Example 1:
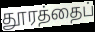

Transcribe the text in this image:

தூரத்தைப்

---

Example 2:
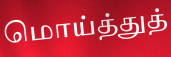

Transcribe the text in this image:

மொய்த்துத்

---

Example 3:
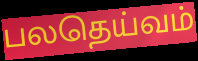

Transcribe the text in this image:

பலதெய்வம்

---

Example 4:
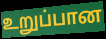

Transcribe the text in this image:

உறுப்பான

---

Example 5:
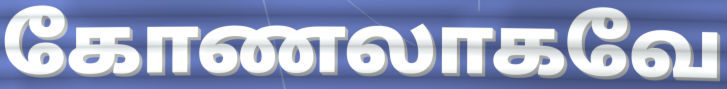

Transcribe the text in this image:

கோணலாகவே